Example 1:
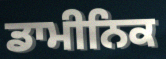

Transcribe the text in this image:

ਡਾਮੀਨਿਕ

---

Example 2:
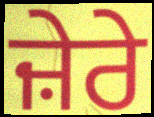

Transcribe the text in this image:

ਜ਼ੇਰੇ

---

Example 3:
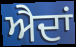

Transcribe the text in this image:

ਐਦਾਂ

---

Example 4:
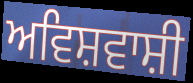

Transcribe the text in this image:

ਅਵਿਸ਼ਵਾਸ਼ੀ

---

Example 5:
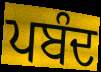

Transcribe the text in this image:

ਪਬੰਦ